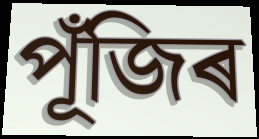
পূঁজিৰ